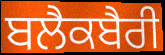
ਬਲੈਕਬੈਰੀ